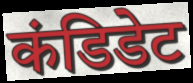
कंडिडेट